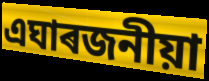
এঘাৰজনীয়া